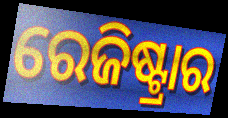
ରେଜିଷ୍ଟ୍ରାର